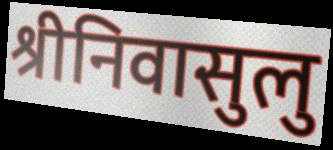
श्रीनिवासुलु